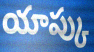
యాప్కు